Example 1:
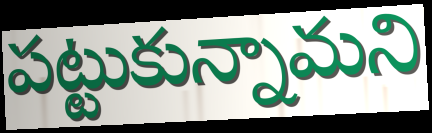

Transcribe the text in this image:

పట్టుకున్నామని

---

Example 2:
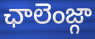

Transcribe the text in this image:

ఛాలెంజ్గా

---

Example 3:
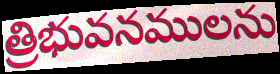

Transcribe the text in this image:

త్రిభువనములను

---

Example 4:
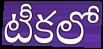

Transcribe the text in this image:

టీకలో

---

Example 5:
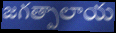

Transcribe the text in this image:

జగత్పాలాయ